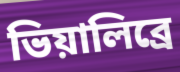
ভিয়ালিব্রে